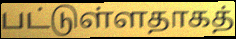
பட்டுள்ளதாகத்